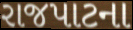
રાજપાટના